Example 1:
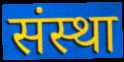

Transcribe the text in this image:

संस्था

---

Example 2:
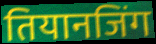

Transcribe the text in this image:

तियानजिंग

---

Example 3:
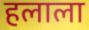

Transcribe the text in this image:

हलाला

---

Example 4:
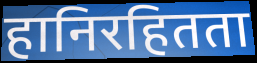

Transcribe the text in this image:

हानिरहितता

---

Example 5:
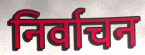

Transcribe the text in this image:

निर्वाचन